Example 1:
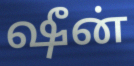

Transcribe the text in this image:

ஷீன்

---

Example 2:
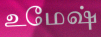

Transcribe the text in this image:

உமேஷ்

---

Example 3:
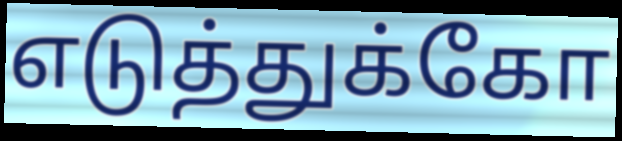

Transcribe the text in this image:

எடுத்துக்கோ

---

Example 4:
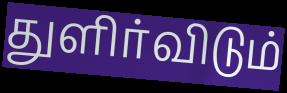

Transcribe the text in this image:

துளிர்விடும்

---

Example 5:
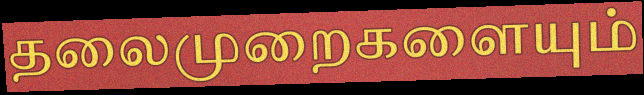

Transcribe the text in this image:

தலைமுறைகளையும்